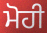
ਮੋਹੀ